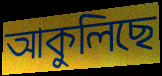
আকুলিছে